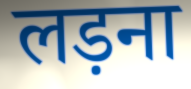
लड़ना